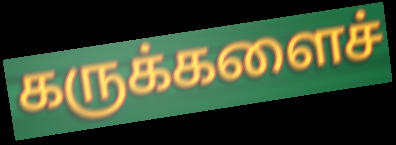
கருக்களைச்